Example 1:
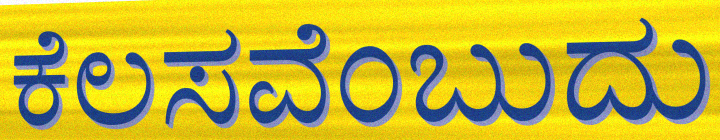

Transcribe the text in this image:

ಕೆಲಸವೆಂಬುದು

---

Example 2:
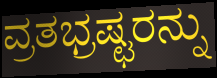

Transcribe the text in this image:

ವ್ರತಭ್ರಷ್ಟರನ್ನು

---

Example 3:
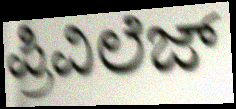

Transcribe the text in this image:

ಪ್ರಿವಿಲೆಜ್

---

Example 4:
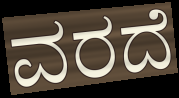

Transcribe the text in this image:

ವರದೆ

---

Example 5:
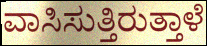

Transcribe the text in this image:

ವಾಸಿಸುತ್ತಿರುತ್ತಾಳೆ